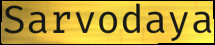
Sarvodaya